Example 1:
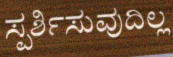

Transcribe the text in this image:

ಸ್ಪರ್ಶಿಸುವುದಿಲ್ಲ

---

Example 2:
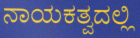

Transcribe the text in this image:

ನಾಯಕತ್ವದಲ್ಲಿ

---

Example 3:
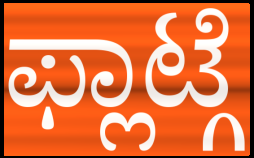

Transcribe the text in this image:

ಫ್ಲಾಟ್ಗೆ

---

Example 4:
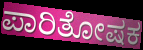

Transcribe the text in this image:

ಪಾರಿತೋಷಕ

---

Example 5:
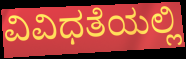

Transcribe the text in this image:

ವಿವಿಧತೆಯಲ್ಲಿ